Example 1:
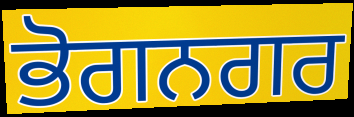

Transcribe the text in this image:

ਭੋਗਨਗਰ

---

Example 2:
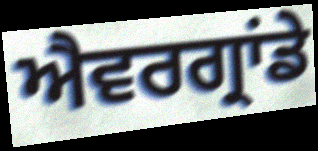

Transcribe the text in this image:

ਐਵਰਗ੍ਰਾਂਡੇ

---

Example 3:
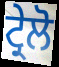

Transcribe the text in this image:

ਟ੍ਰੇਲੋ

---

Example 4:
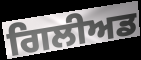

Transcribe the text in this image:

ਗਿਲੀਅਡ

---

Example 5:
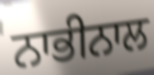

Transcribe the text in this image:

ਨਾਭੀਨਾਲ